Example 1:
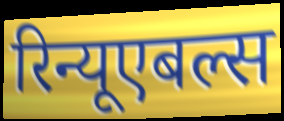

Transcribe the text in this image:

रिन्यूएबल्स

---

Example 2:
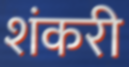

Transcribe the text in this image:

शंकरी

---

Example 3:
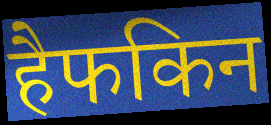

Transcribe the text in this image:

हैफकिन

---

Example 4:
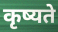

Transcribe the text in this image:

कृष्यते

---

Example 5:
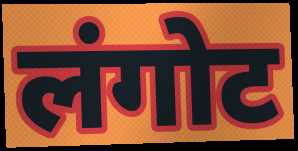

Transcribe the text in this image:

लंगोट